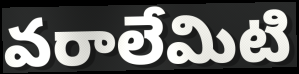
వరాలేమిటి